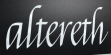
altereth